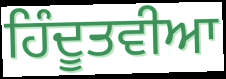
ਹਿੰਦੂਤਵੀਆ